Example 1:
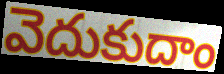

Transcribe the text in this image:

వెదుకుదాం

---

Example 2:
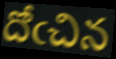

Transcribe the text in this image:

దోఁచిన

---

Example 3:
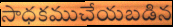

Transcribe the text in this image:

సాధకముచేయబడిన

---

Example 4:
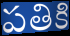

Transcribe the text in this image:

పతికి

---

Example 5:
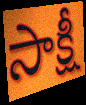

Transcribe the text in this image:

సాక్షీ